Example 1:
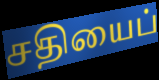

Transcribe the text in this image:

சதியைப்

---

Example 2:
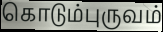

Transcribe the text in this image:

கொடும்புருவம்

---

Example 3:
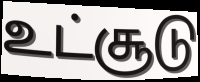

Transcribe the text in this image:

உட்சூடு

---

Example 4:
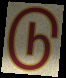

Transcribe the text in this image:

டு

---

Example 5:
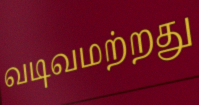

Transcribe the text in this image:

வடிவமற்றது